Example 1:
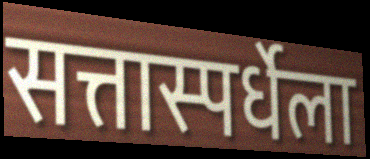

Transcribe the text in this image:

सत्तास्पर्धेला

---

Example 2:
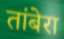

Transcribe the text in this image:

तांबेरा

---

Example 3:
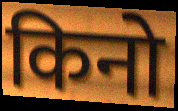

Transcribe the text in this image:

किनो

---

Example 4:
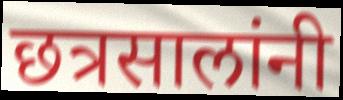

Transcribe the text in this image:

छत्रसालांनी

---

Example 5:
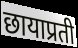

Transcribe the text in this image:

छायाप्रती